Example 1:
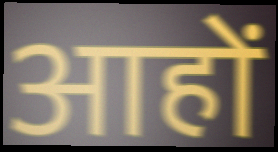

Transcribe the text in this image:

आहों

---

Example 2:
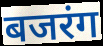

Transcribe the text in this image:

बजरंग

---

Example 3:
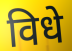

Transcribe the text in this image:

विधे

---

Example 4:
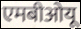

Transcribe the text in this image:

एमबीओयू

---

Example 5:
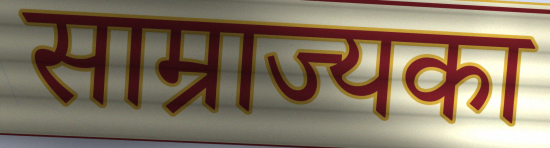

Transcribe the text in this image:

साम्राज्यका